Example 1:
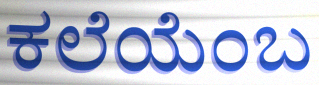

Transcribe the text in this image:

ಕಲೆಯೆಂಬ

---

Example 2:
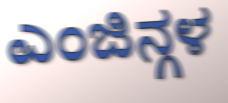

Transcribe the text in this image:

ಎಂಜಿನ್ಗಳ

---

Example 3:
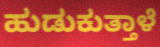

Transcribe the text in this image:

ಹುಡುಕುತ್ತಾಳೆ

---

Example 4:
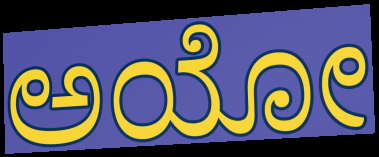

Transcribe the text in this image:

ಅಯೋ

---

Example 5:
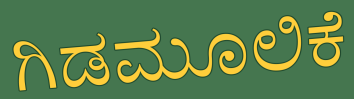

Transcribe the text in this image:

ಗಿಡಮೂಲಿಕೆ